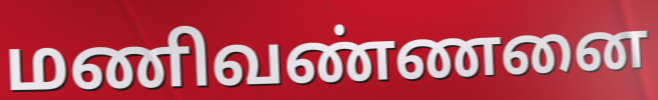
மணிவண்ணனை